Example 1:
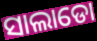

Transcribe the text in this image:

ସାଲାଡୋ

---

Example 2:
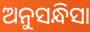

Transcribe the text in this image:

ଅନୁସନ୍ଧିସା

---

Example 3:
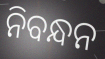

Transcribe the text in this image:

ନିବନ୍ଧନ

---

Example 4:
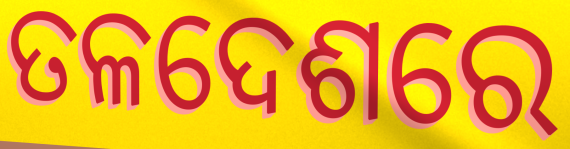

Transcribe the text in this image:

ତଳଦେଶରେ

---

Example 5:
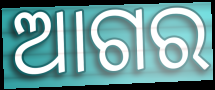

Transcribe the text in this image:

ଆଗର